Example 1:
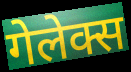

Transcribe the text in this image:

गेलेक्स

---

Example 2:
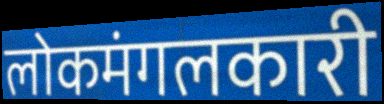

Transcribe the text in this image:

लोकमंगलकारी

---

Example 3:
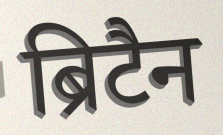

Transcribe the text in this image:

ब्रिटैन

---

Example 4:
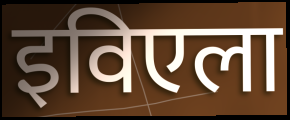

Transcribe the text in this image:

इविएला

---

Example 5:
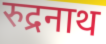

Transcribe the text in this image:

रुद्रनाथ